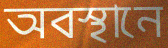
অবস্থানে